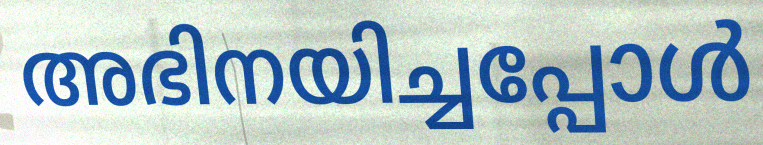
അഭിനയിച്ചപ്പോൾ